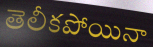
తెలీకపోయినా